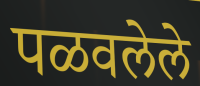
पळवलेले